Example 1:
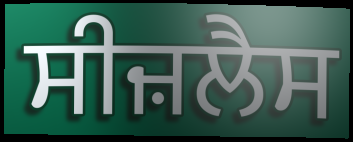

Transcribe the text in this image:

ਸੀਜ਼ਲੈਸ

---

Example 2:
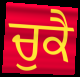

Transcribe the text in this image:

ਚੁਕੈ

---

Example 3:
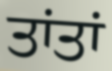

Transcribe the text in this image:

ਤਾਂਤਾਂ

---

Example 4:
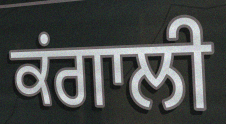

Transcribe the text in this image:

ਕਂਗਾਲੀ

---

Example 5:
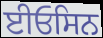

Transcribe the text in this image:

ਈਓਸਿਨ